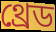
থ্রেড